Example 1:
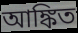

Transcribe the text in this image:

আঙ্কিত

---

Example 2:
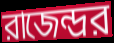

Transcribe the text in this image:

রাজেন্দ্রর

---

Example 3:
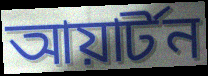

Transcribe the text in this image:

আয়ার্টন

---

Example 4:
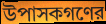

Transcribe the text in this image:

উপাসকগণের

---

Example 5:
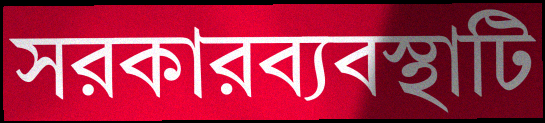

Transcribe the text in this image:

সরকারব্যবস্থাটি